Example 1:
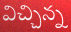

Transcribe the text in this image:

విచ్చిన్న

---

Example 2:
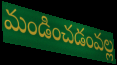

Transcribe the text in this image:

మండించడంవల్ల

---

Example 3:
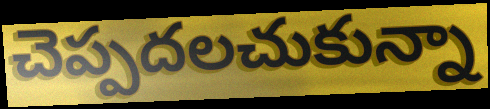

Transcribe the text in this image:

చెప్పదలచుకున్నా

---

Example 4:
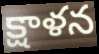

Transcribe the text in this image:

క్షాళన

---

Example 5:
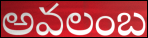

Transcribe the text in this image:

అవలంబ